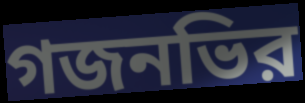
গজনভির